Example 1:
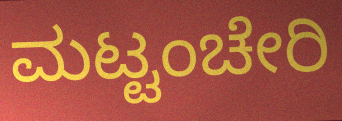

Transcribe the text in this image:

ಮಟ್ಟಂಚೇರಿ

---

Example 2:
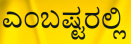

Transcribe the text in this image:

ಎಂಬಷ್ಟರಲ್ಲಿ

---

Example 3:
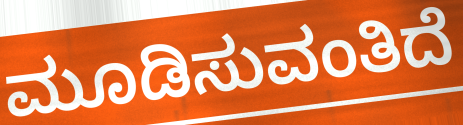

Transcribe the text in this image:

ಮೂಡಿಸುವಂತಿದೆ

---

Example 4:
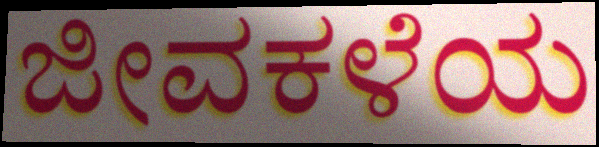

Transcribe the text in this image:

ಜೀವಕಳೆಯ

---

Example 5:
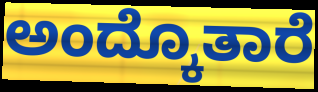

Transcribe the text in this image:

ಅಂದ್ಕೊತಾರೆ